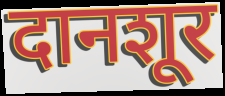
दानशूर